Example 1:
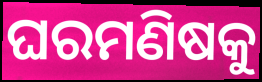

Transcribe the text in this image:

ଘରମଣିଷକୁ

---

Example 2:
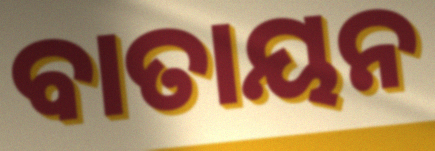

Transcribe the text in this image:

ବାତାୟନ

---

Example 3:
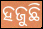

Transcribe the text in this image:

ହଜୁଛି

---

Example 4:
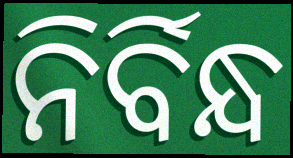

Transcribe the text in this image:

ନିର୍ବିନ୍ଧ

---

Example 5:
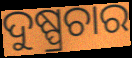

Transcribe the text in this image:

ଦୁଷ୍ପ୍ରଚାର